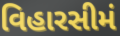
વિહારસીમં